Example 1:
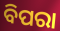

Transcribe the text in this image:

ବିପରା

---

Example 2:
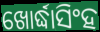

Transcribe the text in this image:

ଖୋର୍ଦ୍ଧାସିଂହ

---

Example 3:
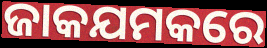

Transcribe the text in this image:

ଜାକଯମକରେ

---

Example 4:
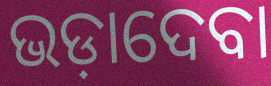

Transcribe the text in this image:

ଭଡ଼ାଦେବା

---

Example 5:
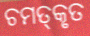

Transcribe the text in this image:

ଚମତ୍‌କୃତ